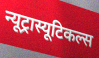
न्यूट्रास्यूटिकल्स